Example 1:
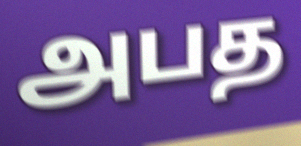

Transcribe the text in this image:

அபத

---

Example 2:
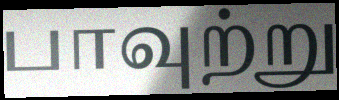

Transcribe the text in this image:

பாவுற்று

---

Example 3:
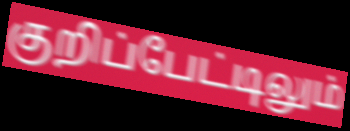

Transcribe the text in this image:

குறிப்பேட்டிலும்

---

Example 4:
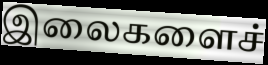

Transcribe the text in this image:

இலைகளைச்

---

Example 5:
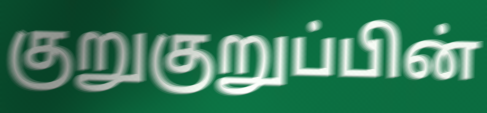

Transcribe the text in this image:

குறுகுறுப்பின்